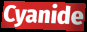
Cyanide